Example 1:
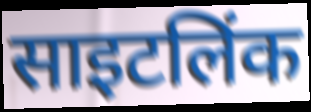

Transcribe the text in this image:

साइटलिंक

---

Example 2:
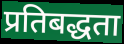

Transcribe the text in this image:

प्रतिबद्धता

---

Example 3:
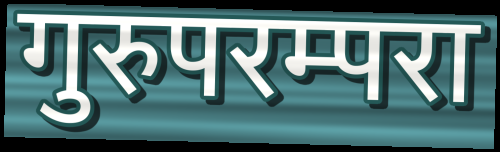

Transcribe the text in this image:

गुरुपरम्परा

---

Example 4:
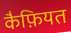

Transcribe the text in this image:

कैफ़ियत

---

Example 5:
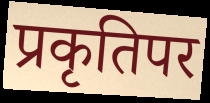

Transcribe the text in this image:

प्रकृतिपर